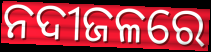
ନଦୀଜଳରେ